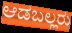
ಆಡಬಲ್ಲರು